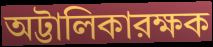
অট্টালিকারক্ষক